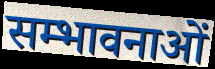
सम्भावनाओं